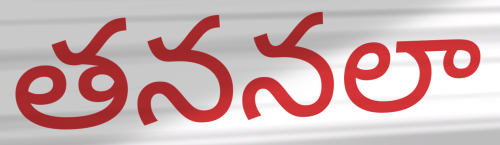
తననలా